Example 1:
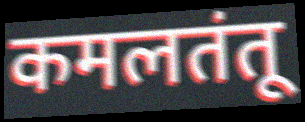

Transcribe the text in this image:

कमलतंतू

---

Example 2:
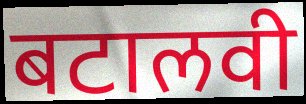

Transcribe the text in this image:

बटालवी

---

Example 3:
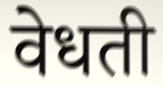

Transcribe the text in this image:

वेधती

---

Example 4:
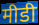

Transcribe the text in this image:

मीडी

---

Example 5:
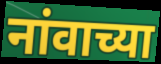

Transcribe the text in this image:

नांवाच्या